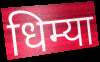
धिम्या